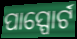
ପାସ୍ପୋର୍ଟ